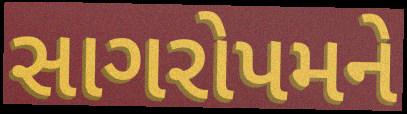
સાગરોપમને